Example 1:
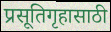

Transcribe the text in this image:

प्रसूतिगृहासाठी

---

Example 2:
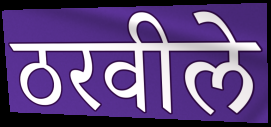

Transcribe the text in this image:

ठरवीले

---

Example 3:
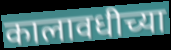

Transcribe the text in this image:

कालावधीच्या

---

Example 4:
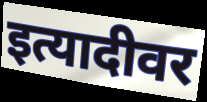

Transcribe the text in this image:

इत्यादीवर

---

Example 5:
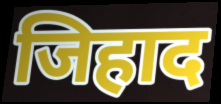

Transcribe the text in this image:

जिहाद